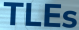
TLEs